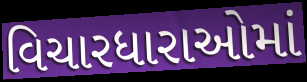
વિચારધારાઓમાં